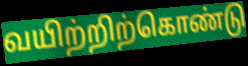
வயிற்றிற்கொண்டு